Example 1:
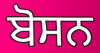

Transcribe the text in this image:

ਬੋਸਨ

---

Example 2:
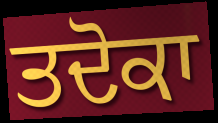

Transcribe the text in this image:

ਤਦੋਕਾ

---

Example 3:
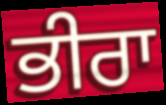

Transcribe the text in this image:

ਭੀਰਾ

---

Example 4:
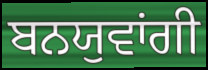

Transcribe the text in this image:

ਬਨਯੁਵਾਂਗੀ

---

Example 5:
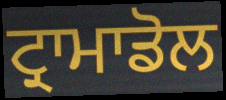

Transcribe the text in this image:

ਟ੍ਰਾਮਾਡੋਲ